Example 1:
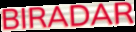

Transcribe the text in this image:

BIRADAR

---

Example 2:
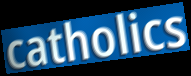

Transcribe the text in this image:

catholics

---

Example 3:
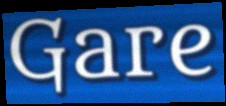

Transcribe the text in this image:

Gare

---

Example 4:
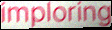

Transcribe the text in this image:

imploring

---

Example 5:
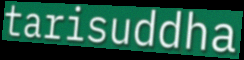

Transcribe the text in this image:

tarisuddha